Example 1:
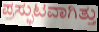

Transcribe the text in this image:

ಪ್ರಸ್ಫುಟವಾಗಿತ್ತು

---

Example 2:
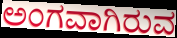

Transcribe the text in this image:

ಅಂಗವಾಗಿರುವ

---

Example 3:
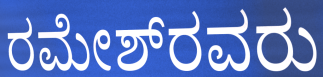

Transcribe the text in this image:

ರಮೇಶ್‌ರವರು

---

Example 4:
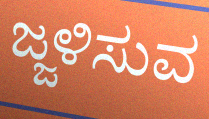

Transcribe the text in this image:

ಜ್ಜಳಿಸುವ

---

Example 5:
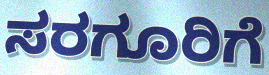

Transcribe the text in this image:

ಸರಗೂರಿಗೆ